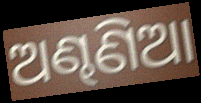
ଅଣ୍ଢଣିଆ